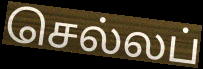
செல்லப்